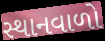
સ્થાનવાળો